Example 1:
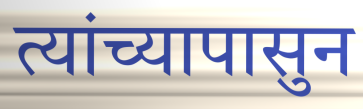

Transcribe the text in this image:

त्यांच्यापासुन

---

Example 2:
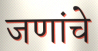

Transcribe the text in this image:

जणांचे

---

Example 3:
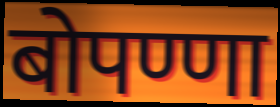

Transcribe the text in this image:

बोपण्णा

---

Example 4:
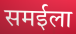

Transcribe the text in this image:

समईला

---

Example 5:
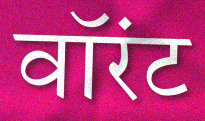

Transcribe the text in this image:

वॉरंट